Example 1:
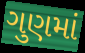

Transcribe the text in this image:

ગુણમાં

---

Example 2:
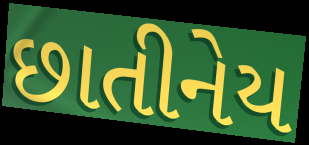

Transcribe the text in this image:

છાતીનેય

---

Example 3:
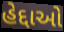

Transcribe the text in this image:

હેદ્દાઓ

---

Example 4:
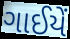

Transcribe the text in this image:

ગાઈયેં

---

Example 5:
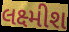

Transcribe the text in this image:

લક્ષ્મીશ